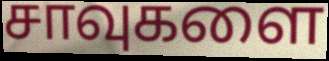
சாவுகளை